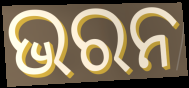
ଭରନ